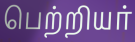
பெற்றியர்